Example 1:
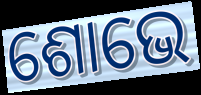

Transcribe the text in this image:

ଶୋଭେ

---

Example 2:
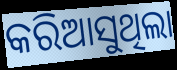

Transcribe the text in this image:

କରିଆସୁଥିଲା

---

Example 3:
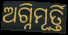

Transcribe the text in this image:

ଅଗ୍ନିମୂର୍ତ୍ତି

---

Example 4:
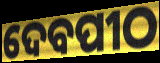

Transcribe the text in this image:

ଦେବପୀଠ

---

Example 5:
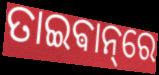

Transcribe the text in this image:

ତାଇଵାନ୍‌ରେ